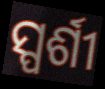
ସ୍ପର୍ଶୀ